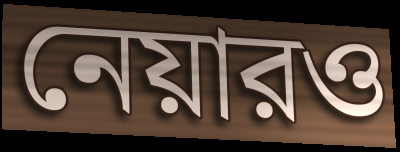
নেয়ারও